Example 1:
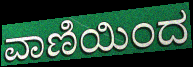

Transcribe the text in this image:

ವಾಣಿಯಿಂದ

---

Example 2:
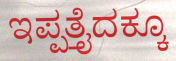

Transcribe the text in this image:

ಇಪ್ಪತ್ತೈದಕ್ಕೂ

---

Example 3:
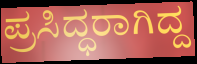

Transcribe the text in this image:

ಪ್ರಸಿದ್ಧರಾಗಿದ್ದ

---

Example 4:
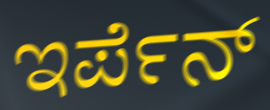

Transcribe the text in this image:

ಇರ್ಪೆನ್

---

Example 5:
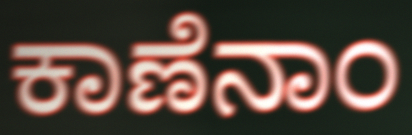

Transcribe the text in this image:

ಕಾಣೆನಾಂ